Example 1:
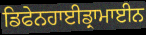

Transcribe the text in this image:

ਡਿਫੇਨਹਾਈਡ੍ਰਾਮਾਈਨ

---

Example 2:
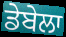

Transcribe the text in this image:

ਡੇਬੇਲਾ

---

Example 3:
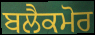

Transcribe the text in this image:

ਬਲੈਕਮੋਰ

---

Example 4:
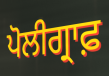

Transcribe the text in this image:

ਪੋਲੀਗ੍ਰਾਫ਼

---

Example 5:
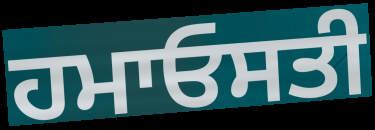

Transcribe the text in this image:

ਹਮਾਓਸਤੀ